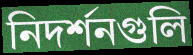
নিদর্শনগুলি